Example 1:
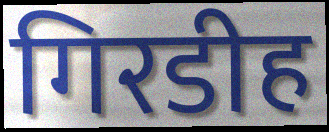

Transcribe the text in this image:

गिरडीह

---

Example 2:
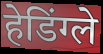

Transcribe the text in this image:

हेडिंग्‍ले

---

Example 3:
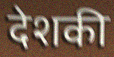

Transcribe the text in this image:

देशकी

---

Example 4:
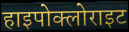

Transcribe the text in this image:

हाइपोक्लोराइट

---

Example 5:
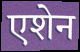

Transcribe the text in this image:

एशेन